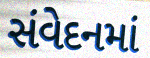
સંવેદનમાં